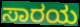
ಸಾರಯ